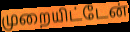
முறையிட்டேன்